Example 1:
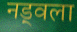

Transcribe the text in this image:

नड्वला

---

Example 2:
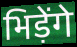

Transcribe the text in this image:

भिड़ेंगे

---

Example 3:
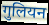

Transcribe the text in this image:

गुलियन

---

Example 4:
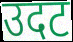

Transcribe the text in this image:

उदट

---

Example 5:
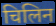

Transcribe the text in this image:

चिलिन